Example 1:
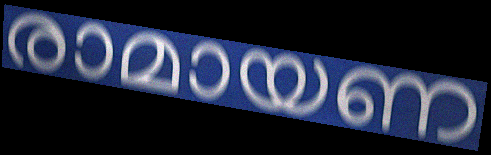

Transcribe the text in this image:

രാമായണ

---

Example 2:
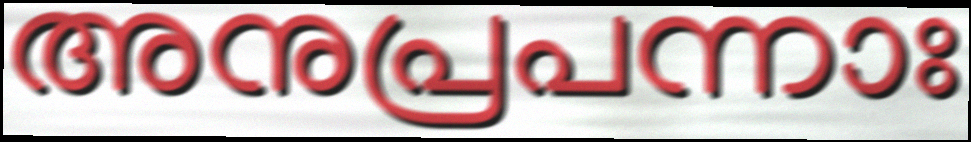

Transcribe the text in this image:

അനുപ്രപന്നാഃ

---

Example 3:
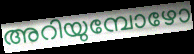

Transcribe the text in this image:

അറിയുമ്പോഴോ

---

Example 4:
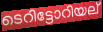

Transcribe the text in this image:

ടെറിട്ടോറിയല്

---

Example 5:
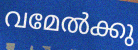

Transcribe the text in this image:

വമേൽക്കു